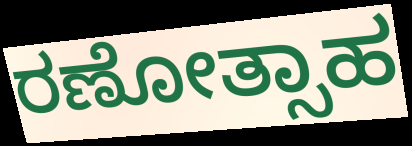
ರಣೋತ್ಸಾಹ